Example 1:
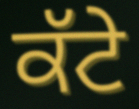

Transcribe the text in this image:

ਕੱਟੇ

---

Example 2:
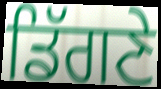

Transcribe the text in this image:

ਡਿੱਗਣੇ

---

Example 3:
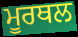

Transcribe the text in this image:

ਮੂਰਥਲ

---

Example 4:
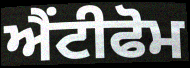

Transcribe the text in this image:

ਐਂਟੀਫੋਮ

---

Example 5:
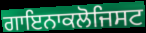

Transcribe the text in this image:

ਗਾਇਨਾਕਲੋਜਿਸਟ